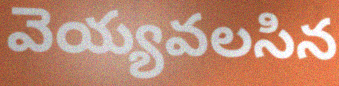
వెయ్యవలసిన